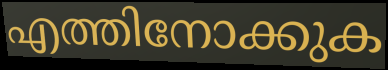
എത്തിനോക്കുക